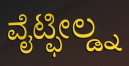
ವೈಟ್ಫೀಲ್ಡ್ನ